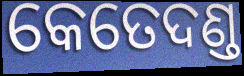
କେତେଦଣ୍ଡ